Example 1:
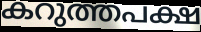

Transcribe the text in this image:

കറുത്തപക്ഷ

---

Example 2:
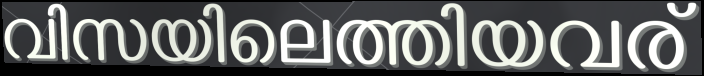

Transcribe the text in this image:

വിസയിലെത്തിയവര്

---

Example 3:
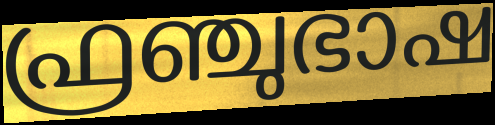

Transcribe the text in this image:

ഫ്രഞ്ചുഭാഷ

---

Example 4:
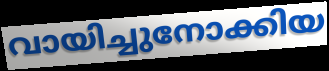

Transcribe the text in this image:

വായിച്ചുനോക്കിയ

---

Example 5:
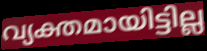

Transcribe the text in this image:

വ്യക്തമായിട്ടില്ല